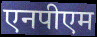
एनपीएम